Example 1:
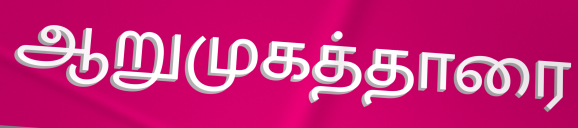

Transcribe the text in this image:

ஆறுமுகத்தாரை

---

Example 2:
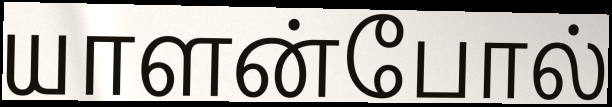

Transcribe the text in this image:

யாளன்போல்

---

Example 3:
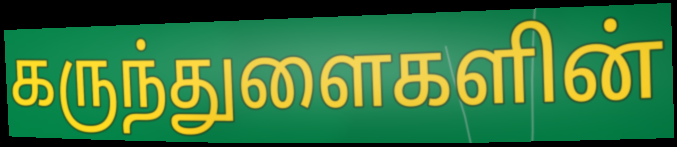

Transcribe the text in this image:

கருந்துளைகளின்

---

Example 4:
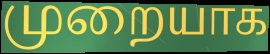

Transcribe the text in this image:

முறையாக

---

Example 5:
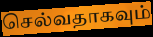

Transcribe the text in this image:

செல்வதாகவும்